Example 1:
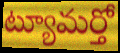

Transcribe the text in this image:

ట్యూమర్తో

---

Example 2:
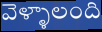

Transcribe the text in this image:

వెళ్ళాలంది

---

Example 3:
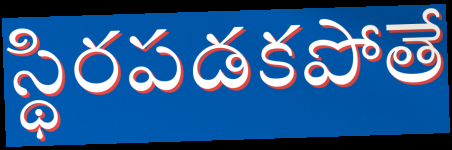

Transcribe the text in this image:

స్థిరపడకపోతే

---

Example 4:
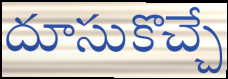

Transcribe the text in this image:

దూసుకొచ్చే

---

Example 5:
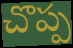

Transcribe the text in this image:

చొప్ప